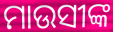
ମାଉସୀଙ୍କ